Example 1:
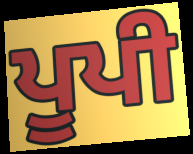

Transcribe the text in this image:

ਪੂਪੀ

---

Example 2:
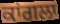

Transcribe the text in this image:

ਕਾਂਗਲਾ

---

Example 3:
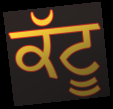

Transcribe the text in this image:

ਕੱਟੂ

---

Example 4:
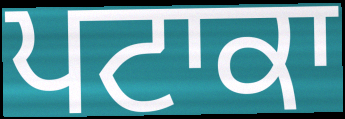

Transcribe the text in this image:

ਪਟਾਕਾ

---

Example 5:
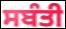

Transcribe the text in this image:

ਸਬੰਤੀ